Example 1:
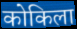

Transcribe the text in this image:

कोकिला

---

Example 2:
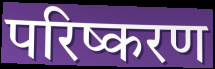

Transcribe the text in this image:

परिष्करण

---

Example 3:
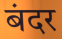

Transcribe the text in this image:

बंदर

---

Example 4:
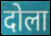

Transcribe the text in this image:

दोला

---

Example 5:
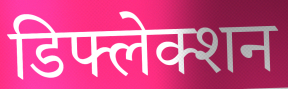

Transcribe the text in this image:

डिफ्लेक्शन